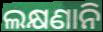
ଲକ୍ଷଣାନି